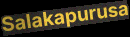
Salakapurusa